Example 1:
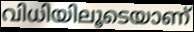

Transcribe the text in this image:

വിധിയിലൂടെയാണ്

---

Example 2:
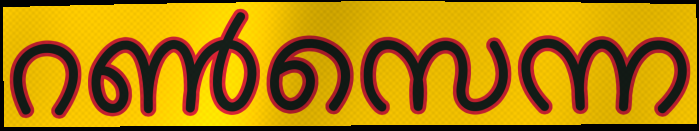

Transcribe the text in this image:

റൺസെന്ന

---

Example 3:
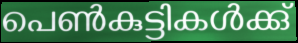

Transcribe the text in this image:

പെൺകുട്ടികൾക്കു്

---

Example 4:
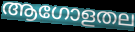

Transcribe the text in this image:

ആഗോളതല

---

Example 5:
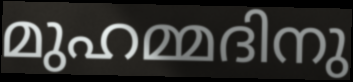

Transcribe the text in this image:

മുഹമ്മദിനു